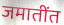
जमातींत